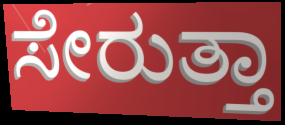
ಸೇರುತ್ತಾ